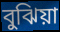
বুঝিয়া